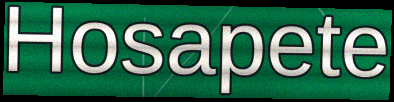
Hosapete